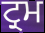
ਟ੍ਰਮ